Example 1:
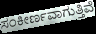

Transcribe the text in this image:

ಸಂಕೀರ್ಣವಾಗುತ್ತಿವೆ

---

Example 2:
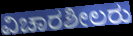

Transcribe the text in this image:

ವಿಚಾರಶೀಲರು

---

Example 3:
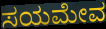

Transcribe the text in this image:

ಸಯಮೇವ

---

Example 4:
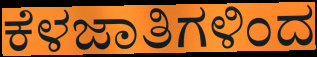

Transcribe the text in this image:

ಕೆಳಜಾತಿಗಳಿಂದ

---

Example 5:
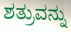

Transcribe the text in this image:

ಶತ್ರುವನ್ನು